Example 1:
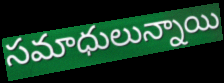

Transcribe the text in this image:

సమాధులున్నాయి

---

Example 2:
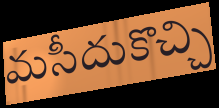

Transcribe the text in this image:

మసీదుకొచ్చి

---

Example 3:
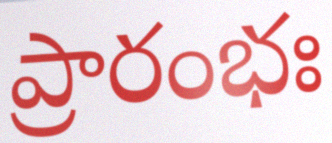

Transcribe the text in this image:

ప్రారంభః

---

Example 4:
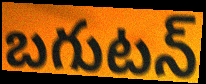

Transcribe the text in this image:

బగుటన్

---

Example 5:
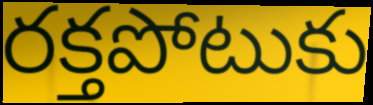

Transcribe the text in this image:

రక్తపోటుకు